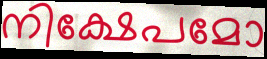
നിക്ഷേപമോ